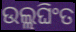
ଉଲ୍ଲଘିଂତ